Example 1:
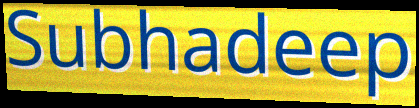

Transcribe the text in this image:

Subhadeep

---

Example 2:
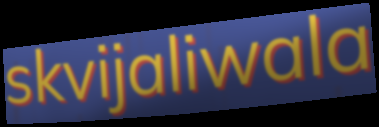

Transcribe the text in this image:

skvijaliwala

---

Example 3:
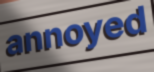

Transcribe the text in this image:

annoyed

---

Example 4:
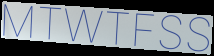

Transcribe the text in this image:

MTWTFSS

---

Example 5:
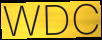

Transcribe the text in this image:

WDC